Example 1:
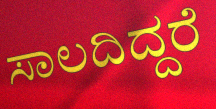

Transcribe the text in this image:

ಸಾಲದಿದ್ದರೆ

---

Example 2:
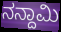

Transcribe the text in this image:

ನನ್ದಾಮಿ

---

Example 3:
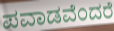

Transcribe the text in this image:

ಪವಾಡವೆಂದರೆ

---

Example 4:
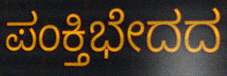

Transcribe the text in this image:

ಪಂಕ್ತಿಭೇದದ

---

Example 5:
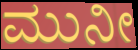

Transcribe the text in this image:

ಮುನೀ